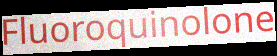
Fluoroquinolone